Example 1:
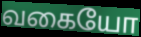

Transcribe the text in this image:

வகையோ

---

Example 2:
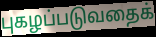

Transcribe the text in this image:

புகழப்படுவதைக்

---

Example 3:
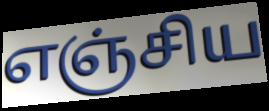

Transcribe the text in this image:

எஞ்சிய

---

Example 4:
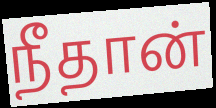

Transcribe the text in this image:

நீதான்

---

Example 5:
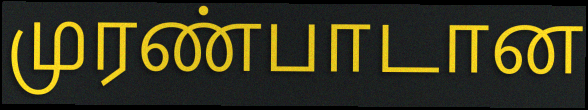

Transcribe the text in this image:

முரண்பாடான